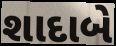
શાદાબે